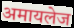
अमायलेज